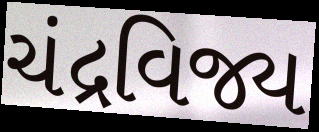
ચંદ્રવિજ્ય